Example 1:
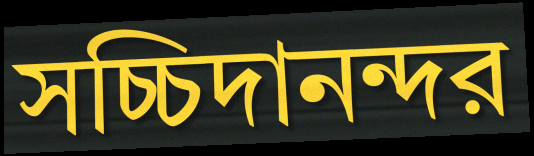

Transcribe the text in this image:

সচ্চিদানন্দর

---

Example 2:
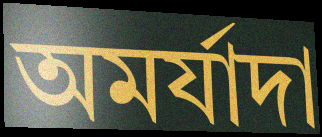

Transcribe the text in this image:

অমর্যাদা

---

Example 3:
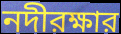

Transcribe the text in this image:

নদীরক্ষার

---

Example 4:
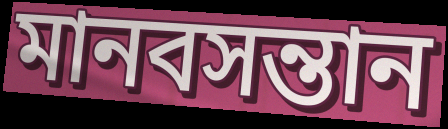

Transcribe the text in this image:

মানবসন্তান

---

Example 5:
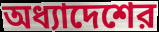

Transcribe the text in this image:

অধ্যাদেশের